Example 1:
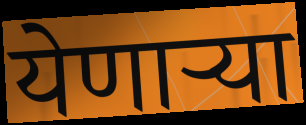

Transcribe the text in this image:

येणार्‍या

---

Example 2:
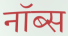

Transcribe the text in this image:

नॉब्स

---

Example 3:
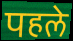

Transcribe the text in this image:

पहले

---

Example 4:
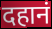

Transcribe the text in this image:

दहानं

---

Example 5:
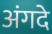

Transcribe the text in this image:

अंगदे